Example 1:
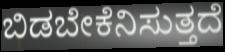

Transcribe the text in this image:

ಬಿಡಬೇಕೆನಿಸುತ್ತದೆ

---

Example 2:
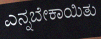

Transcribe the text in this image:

ಎನ್ನಬೇಕಾಯಿತು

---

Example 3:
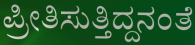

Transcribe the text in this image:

ಪ್ರೀತಿಸುತ್ತಿದ್ದನಂತೆ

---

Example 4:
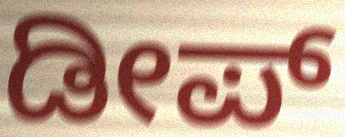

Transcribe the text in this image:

ಡೀಪ್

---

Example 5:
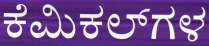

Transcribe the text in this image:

ಕೆಮಿಕಲ್‌ಗಳ